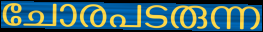
ചോരപടരുന്ന